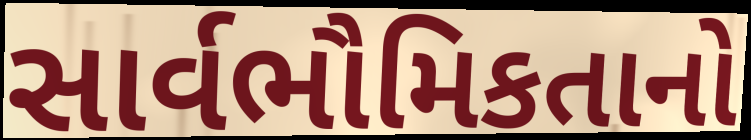
સાર્વભૌમિકતાનો